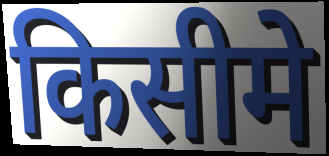
किसीमे